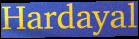
Hardayal